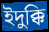
ইদুক্কি